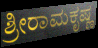
ಶ್ರೀರಾಮಕೃಷ್ಣ